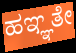
ಹಞ್ಞತೇ